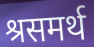
श्रसमर्थ